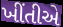
ખીંતીએ